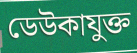
ডেউকাযুক্ত